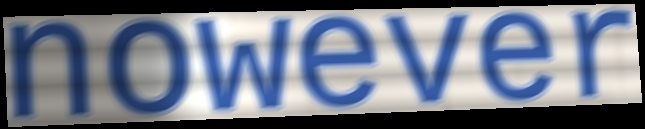
nowever